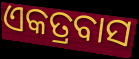
ଏକତ୍ରବାସ